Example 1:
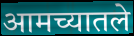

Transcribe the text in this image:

आमच्यातले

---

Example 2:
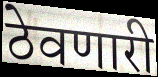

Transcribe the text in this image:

ठेवणारी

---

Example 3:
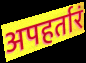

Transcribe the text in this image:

अपहर्तारं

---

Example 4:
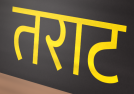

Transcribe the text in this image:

तराट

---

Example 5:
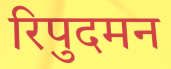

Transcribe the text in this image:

रिपुदमन